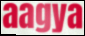
aagya